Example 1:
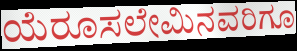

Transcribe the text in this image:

ಯೆರೂಸಲೇಮಿನವರಿಗೂ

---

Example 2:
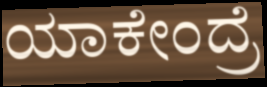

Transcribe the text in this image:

ಯಾಕೇಂದ್ರೆ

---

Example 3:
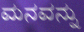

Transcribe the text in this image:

ಮನವನ್ನು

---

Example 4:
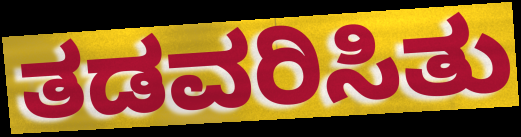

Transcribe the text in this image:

ತಡವರಿಸಿತು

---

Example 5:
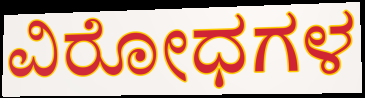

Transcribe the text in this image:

ವಿರೋಧಗಳ